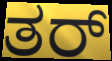
ತರ್